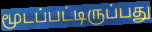
மூடப்பட்டிருப்பது